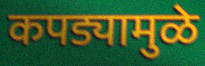
कपड्यामुळे